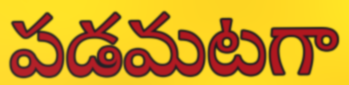
పడమటగా